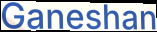
Ganeshan